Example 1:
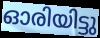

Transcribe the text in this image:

ഓരിയിട്ടു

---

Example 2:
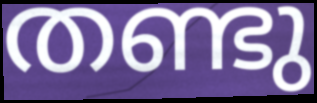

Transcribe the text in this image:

തണ്ടു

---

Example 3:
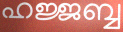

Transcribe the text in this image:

ഹജ്ജബ്ബ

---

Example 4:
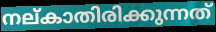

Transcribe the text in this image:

നല്കാതിരിക്കുന്നത്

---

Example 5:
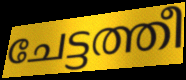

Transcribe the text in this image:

ചേട്ടത്തീ